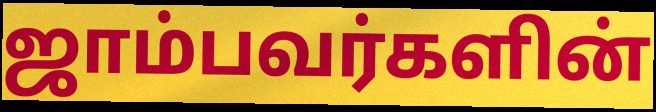
ஜாம்பவர்களின்